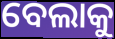
ବେଲାକୁ